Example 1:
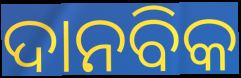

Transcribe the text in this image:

ଦାନବିକ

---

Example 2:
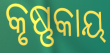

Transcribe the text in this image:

କୃଷ୍ଣକାୟ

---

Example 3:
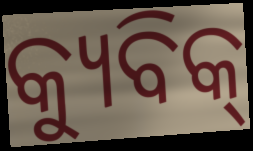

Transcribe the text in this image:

କ୍ୟୁବିକ୍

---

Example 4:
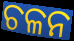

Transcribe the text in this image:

ଚଳନ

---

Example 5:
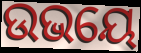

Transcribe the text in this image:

ଉଭୟେ